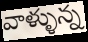
వాళ్ళున్న